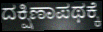
ದಕ್ಷಿಣಾಪಥಕ್ಕೆ